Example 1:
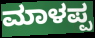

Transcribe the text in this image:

ಮಾಳಪ್ಪ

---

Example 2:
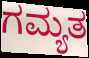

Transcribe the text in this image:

ಗಮ್ಯತ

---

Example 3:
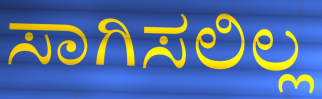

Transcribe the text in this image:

ಸಾಗಿಸಲಿಲ್ಲ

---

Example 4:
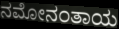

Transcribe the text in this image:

ನಮೋನಂತಾಯ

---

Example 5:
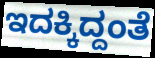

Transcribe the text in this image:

ಇದಕ್ಕಿದ್ದಂತೆ